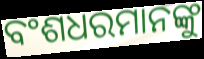
ବଂଶଧରମାନଙ୍କୁ